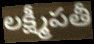
లక్ష్మీపతీ